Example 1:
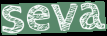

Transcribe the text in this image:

seva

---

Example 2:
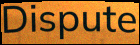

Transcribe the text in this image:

Dispute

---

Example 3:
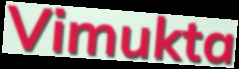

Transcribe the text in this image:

Vimukta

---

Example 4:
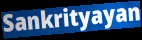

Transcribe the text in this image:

Sankrityayan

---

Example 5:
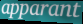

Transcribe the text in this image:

apparant